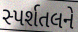
સ્પર્શતલને